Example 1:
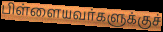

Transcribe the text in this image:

பிள்ளையவர்களுக்குச்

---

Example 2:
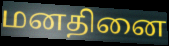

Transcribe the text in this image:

மனதினை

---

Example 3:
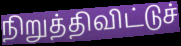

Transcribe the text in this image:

நிறுத்திவிட்டுச்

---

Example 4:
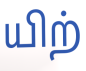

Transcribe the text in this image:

யிற்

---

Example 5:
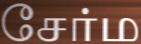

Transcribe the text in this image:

சேர்ம